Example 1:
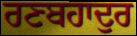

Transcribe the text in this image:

ਰਣਬਹਾਦੁਰ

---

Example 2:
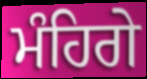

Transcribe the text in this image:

ਮੰਹਿਗੇ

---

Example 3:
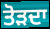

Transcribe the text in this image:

ਤੋੜਦਾ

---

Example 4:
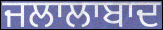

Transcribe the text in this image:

ਜਲਾਲਾਬਾਦ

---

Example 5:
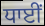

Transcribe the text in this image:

ਧਾਈਂ